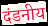
दंडनीय